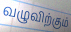
வழுவிற்கும்